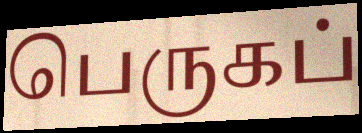
பெருகப்